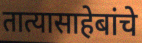
तात्यासाहेबांचे